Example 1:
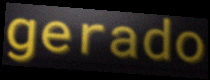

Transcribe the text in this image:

gerado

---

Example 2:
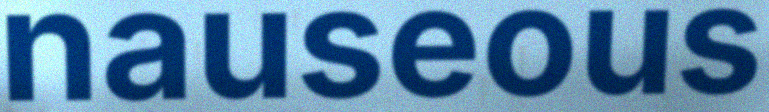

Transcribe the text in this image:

nauseous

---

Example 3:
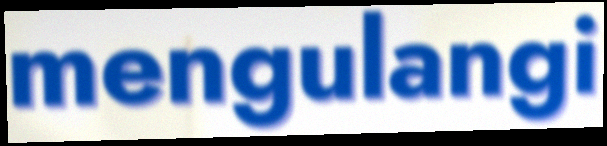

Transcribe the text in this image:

mengulangi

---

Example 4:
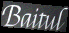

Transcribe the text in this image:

Baitul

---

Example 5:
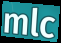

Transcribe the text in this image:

mlc